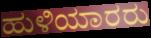
ಹುಳಿಯಾರರು